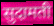
सुदामती